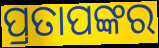
ପ୍ରତାପଙ୍କର